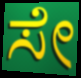
ಸೇ